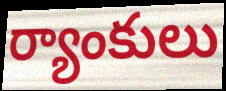
ర్యాంకులు